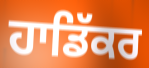
ਹਾਡਿੱਕਰ